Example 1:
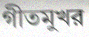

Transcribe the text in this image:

গীতমুখর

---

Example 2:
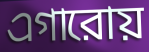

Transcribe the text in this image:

এগারোয়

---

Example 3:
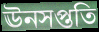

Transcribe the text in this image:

ঊনসপ্ততি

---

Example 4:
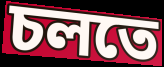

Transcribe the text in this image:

চলতে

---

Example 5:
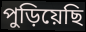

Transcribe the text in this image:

পুড়িয়েছি